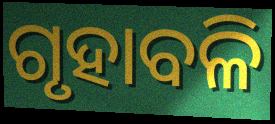
ଗୃହାବଳି